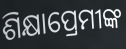
ଶିକ୍ଷାପ୍ରେମୀଙ୍କ